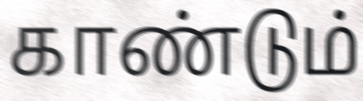
காண்டும்